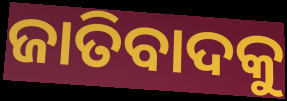
ଜାତିବାଦକୁ